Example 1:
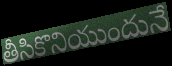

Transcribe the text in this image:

తీసికొనియుందునే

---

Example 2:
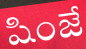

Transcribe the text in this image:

షింజే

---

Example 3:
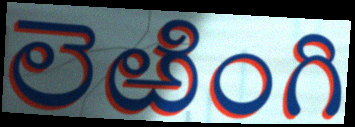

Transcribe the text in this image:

లెఱింగి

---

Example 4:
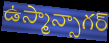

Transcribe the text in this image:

ఉస్మాన్సాగర్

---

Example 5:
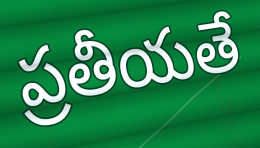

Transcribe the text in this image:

ప్రతీయతే